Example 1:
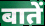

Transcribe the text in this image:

बातें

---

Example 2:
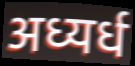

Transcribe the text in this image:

अध्यर्ध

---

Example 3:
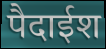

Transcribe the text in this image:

पैदाईश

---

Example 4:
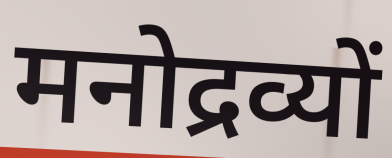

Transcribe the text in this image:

मनोद्रव्यों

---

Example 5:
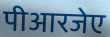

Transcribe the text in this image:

पीआरजेए